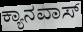
ಕ್ಯಾನವಾಸ್